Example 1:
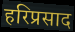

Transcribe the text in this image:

हरिप्रसाद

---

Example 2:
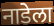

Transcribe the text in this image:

नाडेला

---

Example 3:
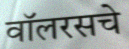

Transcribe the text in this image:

वॉलरसचे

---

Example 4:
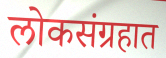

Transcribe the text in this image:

लोकसंग्रहात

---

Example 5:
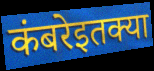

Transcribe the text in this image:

कंबरेइतक्या